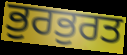
ਭੁਰਭੁਰਤ